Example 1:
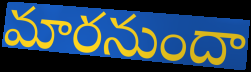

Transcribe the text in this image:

మారనుందా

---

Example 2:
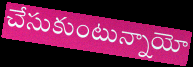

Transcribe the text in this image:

చేసుకుంటున్నాయో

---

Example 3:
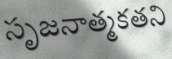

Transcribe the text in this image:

సృజనాత్మకతని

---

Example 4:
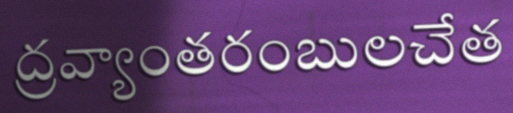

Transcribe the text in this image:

ద్రవ్యాంతరంబులచేత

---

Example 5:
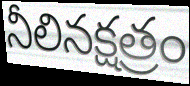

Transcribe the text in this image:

నీలినక్షత్రం